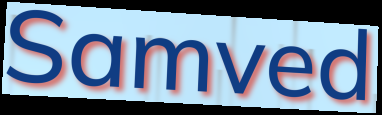
Samved